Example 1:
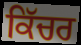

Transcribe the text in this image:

ਕਿੱਚਰ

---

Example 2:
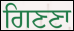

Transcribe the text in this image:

ਗਿਣਣਾ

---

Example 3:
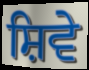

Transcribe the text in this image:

ਸ਼ਿਵੇ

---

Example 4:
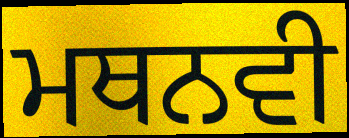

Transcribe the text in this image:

ਮਥਨਵੀ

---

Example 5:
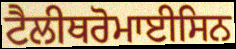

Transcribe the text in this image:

ਟੈਲੀਥਰੋਮਾਈਸਿਨ